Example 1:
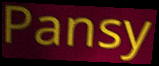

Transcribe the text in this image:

Pansy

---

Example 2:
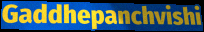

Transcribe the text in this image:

Gaddhepanchvishi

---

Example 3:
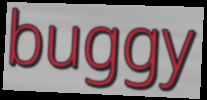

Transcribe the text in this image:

buggy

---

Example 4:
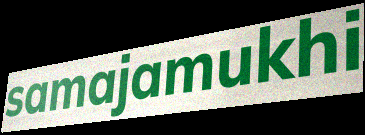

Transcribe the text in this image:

samajamukhi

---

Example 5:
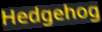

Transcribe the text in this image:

Hedgehog